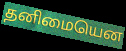
தனிமையென